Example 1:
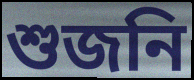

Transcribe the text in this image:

শুজনি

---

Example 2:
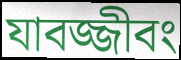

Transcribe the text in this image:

যাবজ্জীবং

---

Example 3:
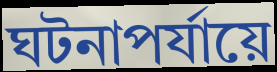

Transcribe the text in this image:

ঘটনাপর্যায়ে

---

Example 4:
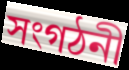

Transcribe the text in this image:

সংগঠনী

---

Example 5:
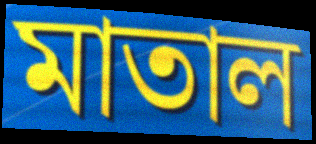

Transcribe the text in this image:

মাতাল